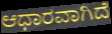
ಆಧಾರವಾಗಿದೆ